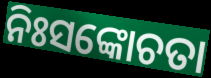
ନିଃସଙ୍କୋଚତା